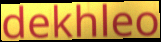
dekhleo